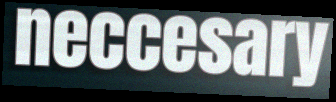
neccesary